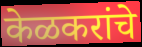
केळकरांचे